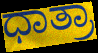
ಧಾತ್ರಾ